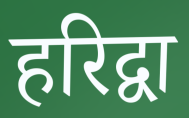
हरिद्वा